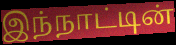
இந்நாட்டின்